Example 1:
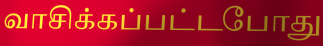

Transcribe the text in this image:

வாசிக்கப்பட்டபோது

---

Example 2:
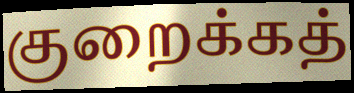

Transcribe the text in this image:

குறைக்கத்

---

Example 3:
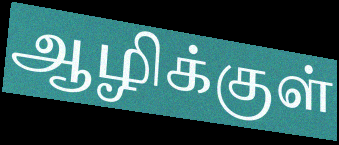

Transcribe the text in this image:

ஆழிக்குள்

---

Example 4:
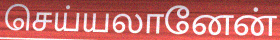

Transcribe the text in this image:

செய்யலானேன்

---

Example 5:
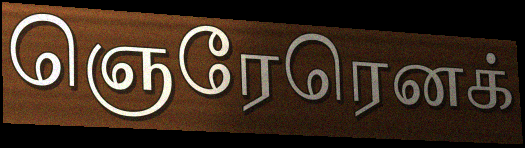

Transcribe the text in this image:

ஞெரேரெனக்